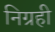
निग्रही